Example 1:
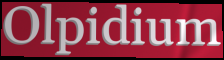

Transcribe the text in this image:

Olpidium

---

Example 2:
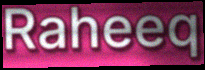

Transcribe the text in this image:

Raheeq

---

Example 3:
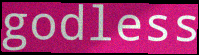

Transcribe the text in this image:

godless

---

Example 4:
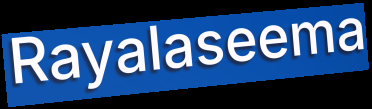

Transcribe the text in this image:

Rayalaseema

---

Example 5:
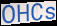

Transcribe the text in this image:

OHCs